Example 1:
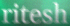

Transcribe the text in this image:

ritesh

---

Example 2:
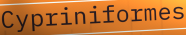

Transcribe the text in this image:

Cypriniformes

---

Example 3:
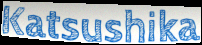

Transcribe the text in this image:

Katsushika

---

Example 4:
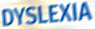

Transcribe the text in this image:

DYSLEXIA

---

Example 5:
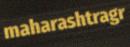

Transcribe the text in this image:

maharashtragr